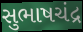
સુભાષચંદ્ર